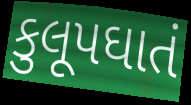
કુલૂપઘાતં